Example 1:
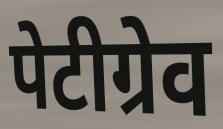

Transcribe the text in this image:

पेटीग्रेव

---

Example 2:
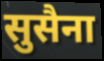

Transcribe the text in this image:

सुसैना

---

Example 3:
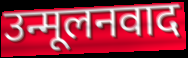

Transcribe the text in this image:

उन्मूलनवाद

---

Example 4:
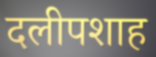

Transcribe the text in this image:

दलीपशाह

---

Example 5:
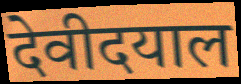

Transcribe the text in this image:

देवीदयाल